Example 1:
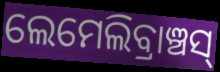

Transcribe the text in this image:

ଲେମେଲିବ୍ରାଞ୍ଚସ୍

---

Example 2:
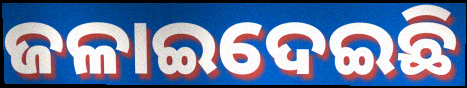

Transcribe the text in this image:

ଜଳାଇଦେଇଛି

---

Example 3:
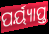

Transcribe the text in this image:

ପର୍ୟ୍ୟାପ୍ତ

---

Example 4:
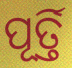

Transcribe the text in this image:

ପୂର୍ତ୍ତି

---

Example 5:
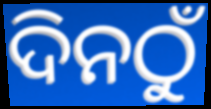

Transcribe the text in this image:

ଦିନଠୁଁ